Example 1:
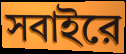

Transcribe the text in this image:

সবাইরে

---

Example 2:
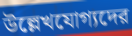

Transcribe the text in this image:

উল্লেখযোগ্যদের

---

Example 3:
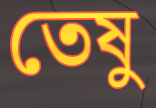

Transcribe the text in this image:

তেষু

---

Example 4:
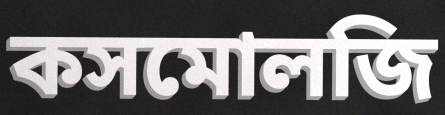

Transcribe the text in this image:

কসমোলজি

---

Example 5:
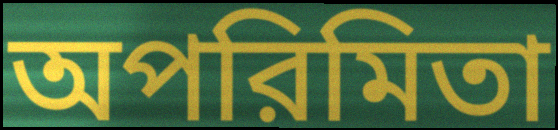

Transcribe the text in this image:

অপরিমিতা